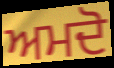
ਅਮਦੋ